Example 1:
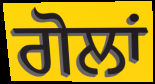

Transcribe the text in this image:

ਗੋਲਾਂ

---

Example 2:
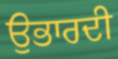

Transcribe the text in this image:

ਉਭਾਰਦੀ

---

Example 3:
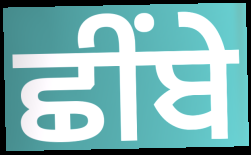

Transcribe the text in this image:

ਛੀਂਬੇ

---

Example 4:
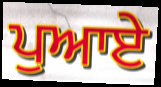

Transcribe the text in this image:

ਪੁਆਏ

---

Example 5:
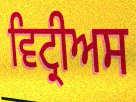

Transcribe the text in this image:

ਵਿਟ੍ਰੀਅਸ